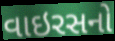
વાઇરસનો